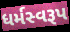
ધર્મસ્વરૂપ